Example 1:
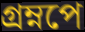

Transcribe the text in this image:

গ্রম্নপে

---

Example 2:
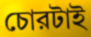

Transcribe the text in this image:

চোরটাই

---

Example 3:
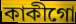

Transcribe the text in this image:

কাকীগো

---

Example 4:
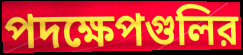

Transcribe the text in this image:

পদক্ষেপগুলির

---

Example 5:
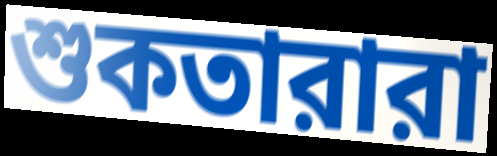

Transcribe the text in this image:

শুকতারারা